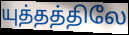
யுத்தத்திலே